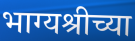
भाग्यश्रीच्या